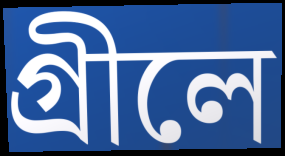
গ্রীলে